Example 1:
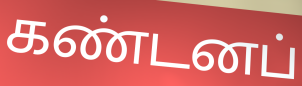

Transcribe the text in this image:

கண்டனப்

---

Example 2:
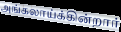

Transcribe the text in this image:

அங்கலாய்க்கின்றார்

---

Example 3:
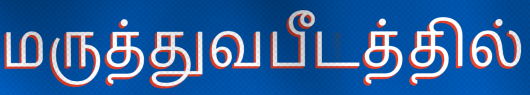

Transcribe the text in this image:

மருத்துவபீடத்தில்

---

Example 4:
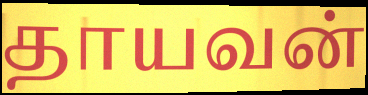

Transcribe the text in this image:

தாயவன்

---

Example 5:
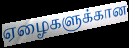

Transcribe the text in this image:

ஏழைகளுக்கான